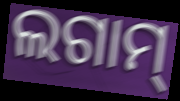
ଲଗାମ୍